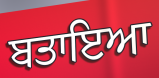
ਬਤਾਇਆ